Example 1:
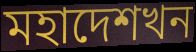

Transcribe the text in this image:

মহাদেশখন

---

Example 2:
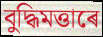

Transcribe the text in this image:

বুদ্ধিমত্তাৰে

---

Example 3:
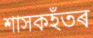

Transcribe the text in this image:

শাসকহঁতৰ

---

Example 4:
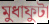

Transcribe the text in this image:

মুধাফুটা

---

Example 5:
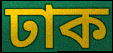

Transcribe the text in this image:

ঢাক